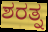
ಶರತ್ನ